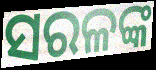
ସରଳଙ୍କ